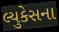
લ્યુકેસના